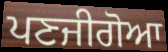
ਪਣਜੀਗੋਆ